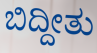
ಬಿದ್ದೀತು